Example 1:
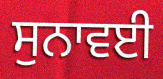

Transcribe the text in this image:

ਸੁਨਾਵਈ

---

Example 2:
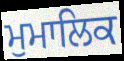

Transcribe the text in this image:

ਮੁਮਾਲਿਕ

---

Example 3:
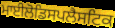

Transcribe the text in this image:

ਮਾਈਲੋਡਿਸਪਲੈਸਟਿਕ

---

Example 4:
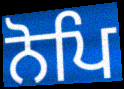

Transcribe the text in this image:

ਨੋਪਿ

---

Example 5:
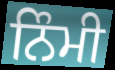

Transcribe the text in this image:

ਨਿੰਮੀ